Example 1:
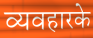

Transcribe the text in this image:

व्यवहारके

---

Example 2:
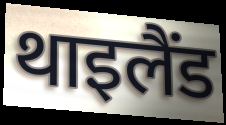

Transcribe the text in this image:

थाइलैंड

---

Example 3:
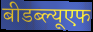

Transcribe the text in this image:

बीडब्ल्यूएफ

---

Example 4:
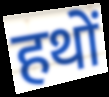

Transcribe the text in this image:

हथों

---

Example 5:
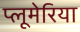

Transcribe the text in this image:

प्लूमेरिया